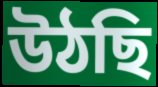
উঠছি